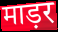
माड़र